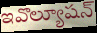
ఇవొల్యూషన్